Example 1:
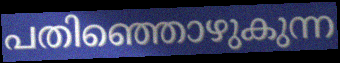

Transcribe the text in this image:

പതിഞ്ഞൊഴുകുന്ന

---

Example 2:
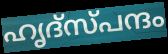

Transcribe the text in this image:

ഹൃദ്സ്പന്ദം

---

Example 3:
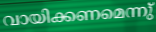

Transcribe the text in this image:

വായിക്കണമെന്നു്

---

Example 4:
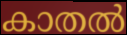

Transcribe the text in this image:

കാതൽ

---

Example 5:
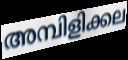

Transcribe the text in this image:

അമ്പിളിക്കല